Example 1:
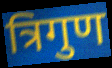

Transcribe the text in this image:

त्रिगुण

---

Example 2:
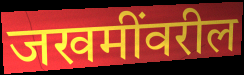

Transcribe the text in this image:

जखमींवरील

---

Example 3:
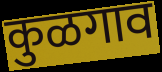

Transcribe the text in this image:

कुळगाव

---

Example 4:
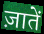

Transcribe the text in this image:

ज़ातें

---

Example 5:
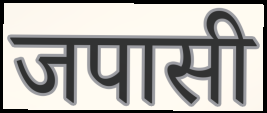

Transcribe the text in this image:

जपासी